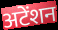
अटेंशन